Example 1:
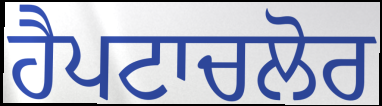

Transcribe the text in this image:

ਹੈਪਟਾਚਲੋਰ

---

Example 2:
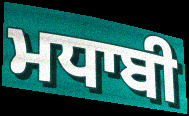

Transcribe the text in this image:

ਮਧਾਬੀ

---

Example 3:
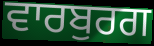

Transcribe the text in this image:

ਵਾਰਬੁਰਗ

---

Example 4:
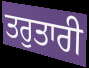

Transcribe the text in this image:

ਤਰੁਤਾਰੀ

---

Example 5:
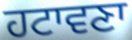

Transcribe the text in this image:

ਹਟਾਵਣਾ